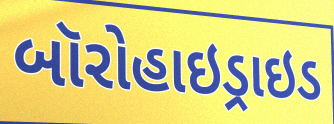
બૉરોહાઇડ્રાઇડ